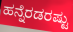
ಹನ್ನೆರಡರಷ್ಟು